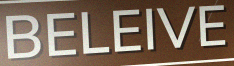
BELEIVE